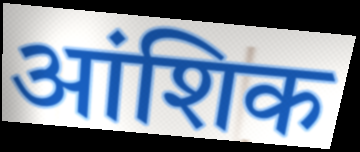
आंशिक